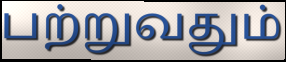
பற்றுவதும்